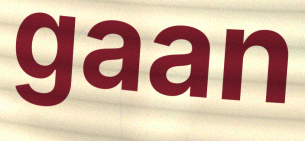
gaan